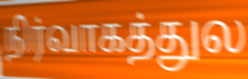
நிர்வாகத்துல